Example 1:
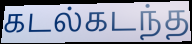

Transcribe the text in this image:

கடல்கடந்த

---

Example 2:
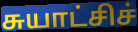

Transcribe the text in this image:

சுயாட்சிச்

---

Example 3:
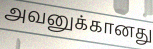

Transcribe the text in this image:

அவனுக்கானது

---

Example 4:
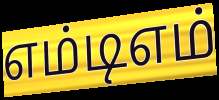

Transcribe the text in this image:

எம்டிஎம்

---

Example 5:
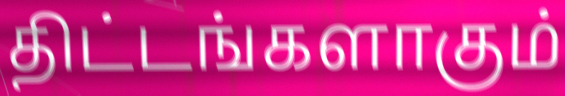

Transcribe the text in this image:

திட்டங்களாகும்